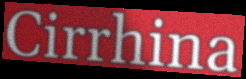
Cirrhina